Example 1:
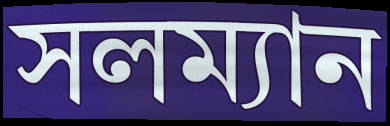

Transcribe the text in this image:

সলম্যান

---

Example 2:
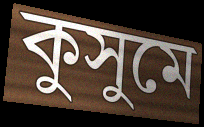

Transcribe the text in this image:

কুসুমে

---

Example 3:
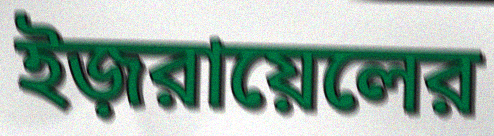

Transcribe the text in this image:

ইজ়রায়েলের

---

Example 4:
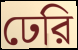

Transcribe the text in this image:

ঢেরি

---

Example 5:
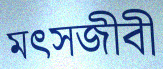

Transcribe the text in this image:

মৎসজীবী